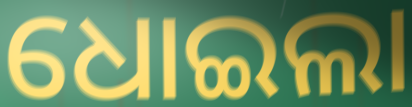
ଧୋଇଲା